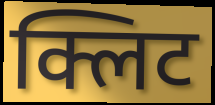
क्लिट